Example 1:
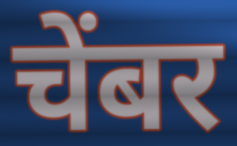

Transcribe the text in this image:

चेंबर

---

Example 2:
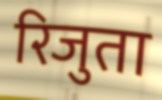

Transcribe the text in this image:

रिजुता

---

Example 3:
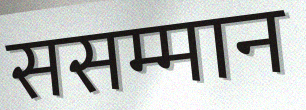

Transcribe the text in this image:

ससम्मान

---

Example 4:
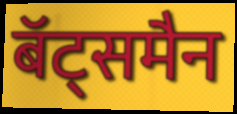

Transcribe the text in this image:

बॅट्समैन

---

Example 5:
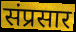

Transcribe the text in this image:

संप्रसार